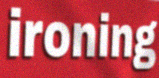
ironing